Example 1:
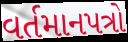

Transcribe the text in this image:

વર્તમાનપત્રો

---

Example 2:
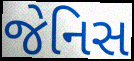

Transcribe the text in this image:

જેનિસ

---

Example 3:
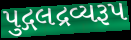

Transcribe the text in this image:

પુદ્ગલદ્રવ્યરૂપ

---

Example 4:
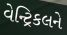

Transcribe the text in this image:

વેન્ટ્રિકલને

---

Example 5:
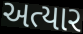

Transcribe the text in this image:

અત્યાર